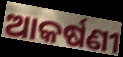
ଆକର୍ଷଣୀ